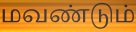
மவண்டும்